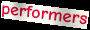
performers